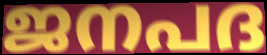
ജനപദ